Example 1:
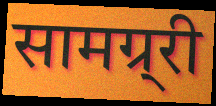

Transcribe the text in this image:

सामग्र्री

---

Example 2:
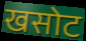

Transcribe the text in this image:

खसोट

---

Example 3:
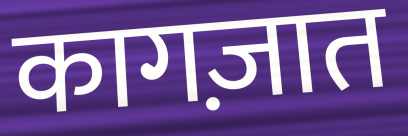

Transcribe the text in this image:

कागज़ात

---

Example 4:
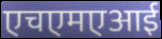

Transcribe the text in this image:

एचएमएआई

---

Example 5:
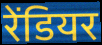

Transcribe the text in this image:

रेंडियर